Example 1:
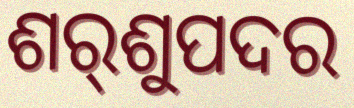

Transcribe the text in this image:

ଶର୍‌ଶୁପଦର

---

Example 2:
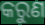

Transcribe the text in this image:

କରୁଣ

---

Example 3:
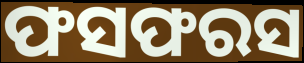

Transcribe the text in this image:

ଫସଫରସ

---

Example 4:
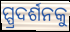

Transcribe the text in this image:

ପ୍ପ୍ରଦର୍ଶନକୁ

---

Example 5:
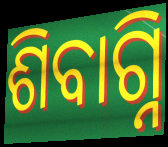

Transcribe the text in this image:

ଶିବାଗ୍ନି